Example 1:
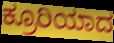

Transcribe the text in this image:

ಕ್ರೂರಿಯಾದ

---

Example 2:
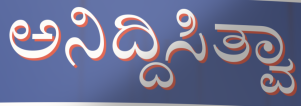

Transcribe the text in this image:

ಅನಿದ್ದಿಸಿತ್ವಾ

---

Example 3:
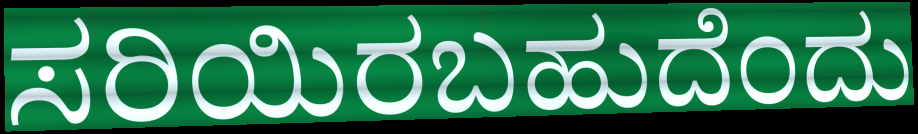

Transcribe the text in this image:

ಸರಿಯಿರಬಹುದೆಂದು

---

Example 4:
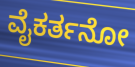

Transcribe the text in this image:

ವೈಕರ್ತನೋ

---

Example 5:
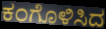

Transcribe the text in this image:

ಕಂಗೊಳಿಸಿದ